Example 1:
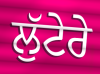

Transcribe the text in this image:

ਲੁੱਟੇਰੇ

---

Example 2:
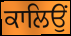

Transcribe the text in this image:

ਕਾਲਿਉਂ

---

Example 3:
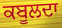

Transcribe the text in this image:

ਕਬੂਲਦਾ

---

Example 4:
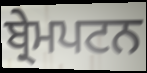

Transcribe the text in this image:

ਬ੍ਰੇਮਪਟਨ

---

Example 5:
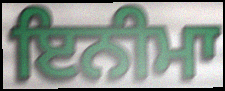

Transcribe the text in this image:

ਇਨੀਮਾ